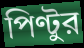
পিণ্টুর